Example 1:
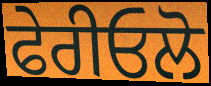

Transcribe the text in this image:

ਫੇਰੀਓਲੋ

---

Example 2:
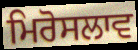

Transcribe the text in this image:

ਮਿਰੋਸਲਾਵ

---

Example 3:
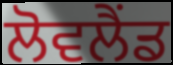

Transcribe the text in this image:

ਲੋਵਲੈਂਡ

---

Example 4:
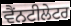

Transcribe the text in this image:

ਵੈਂਨਟੀਲੇਟਰ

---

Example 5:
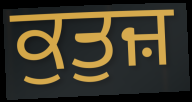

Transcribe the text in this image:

ਕੁਤੁਜ਼